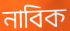
নাবিক